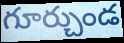
గూర్చుండ